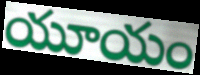
యూయం